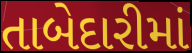
તાબેદારીમાં